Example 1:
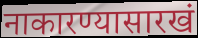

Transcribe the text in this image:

नाकारण्यासारखं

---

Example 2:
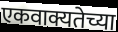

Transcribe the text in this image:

एकवाक्यतेच्या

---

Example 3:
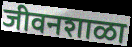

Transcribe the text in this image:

जीवनशाळा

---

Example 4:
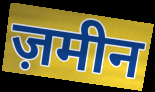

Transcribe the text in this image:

ज़मीन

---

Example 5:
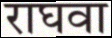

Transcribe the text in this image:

राघवा